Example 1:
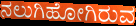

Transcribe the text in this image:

ನಲುಗಿಹೋಗಿರುವ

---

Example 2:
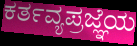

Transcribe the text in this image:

ಕರ್ತವ್ಯಪ್ರಜ್ಞೆಯ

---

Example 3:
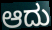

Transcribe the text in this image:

ಆದು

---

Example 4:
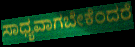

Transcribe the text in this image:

ಸಾಧ್ಯವಾಗಬೇಕೆಂದರೆ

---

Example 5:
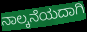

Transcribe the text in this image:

ನಾಲ್ಕನೆಯದಾಗಿ